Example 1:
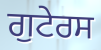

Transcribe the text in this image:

ਗੁਟੇਰਸ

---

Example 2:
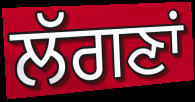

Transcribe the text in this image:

ਲੱਗਣਾਂ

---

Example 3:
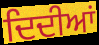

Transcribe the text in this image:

ਦਿਦੀਆਂ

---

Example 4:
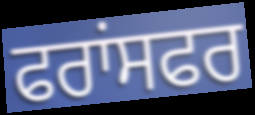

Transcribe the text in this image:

ਫਰਾਂਸਫਰ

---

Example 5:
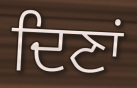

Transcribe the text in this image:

ਦਿਣਾਂ